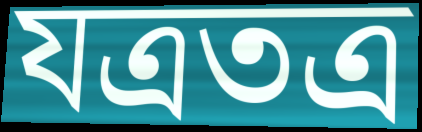
যত্রতত্র